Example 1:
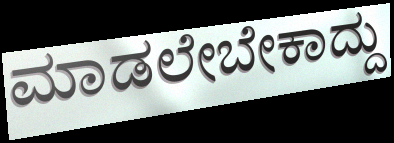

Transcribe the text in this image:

ಮಾಡಲೇಬೇಕಾದ್ದು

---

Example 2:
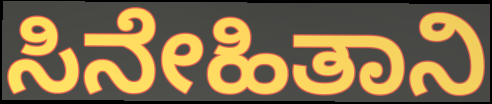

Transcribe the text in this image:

ಸಿನೇಹಿತಾನಿ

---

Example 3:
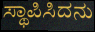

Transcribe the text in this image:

ಸ್ಥಾಪಿಸಿದನು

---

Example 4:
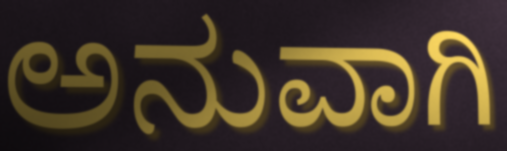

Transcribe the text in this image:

ಅನುವಾಗಿ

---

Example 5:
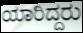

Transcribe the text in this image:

ಯಾರಿದ್ದರು